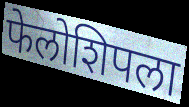
फेलोशिपला